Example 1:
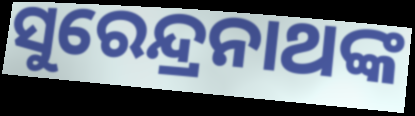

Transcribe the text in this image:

ସୁରେନ୍ଦ୍ରନାଥଙ୍କ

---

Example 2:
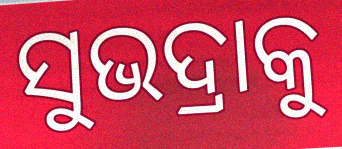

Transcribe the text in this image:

ସୁଭଦ୍ରାକୁ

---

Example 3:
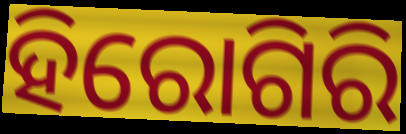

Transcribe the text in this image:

ହିରୋଗିରି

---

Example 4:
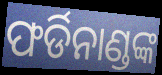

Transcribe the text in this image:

ଫର୍ଡିନାଣ୍ଡଙ୍କ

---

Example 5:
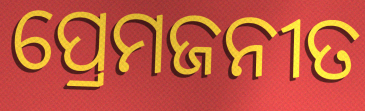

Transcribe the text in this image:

ପ୍ରେମଜନୀତ